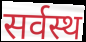
सर्वस्थ